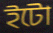
ইটো